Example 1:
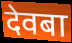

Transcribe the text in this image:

देवबा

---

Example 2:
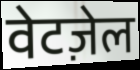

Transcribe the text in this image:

वेटज़ेल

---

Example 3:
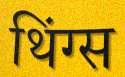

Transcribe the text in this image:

थिंग्स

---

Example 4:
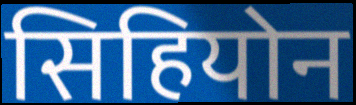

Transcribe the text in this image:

सिहियोन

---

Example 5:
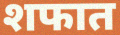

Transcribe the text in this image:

शफात